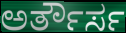
ಅರ್ತೌರ್ಸ